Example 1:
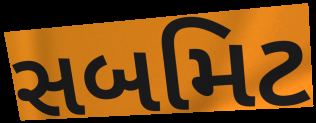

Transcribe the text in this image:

સબમિટ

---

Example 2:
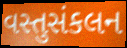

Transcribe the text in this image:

વસ્તુસંકલન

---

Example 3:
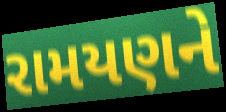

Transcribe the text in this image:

રામયણને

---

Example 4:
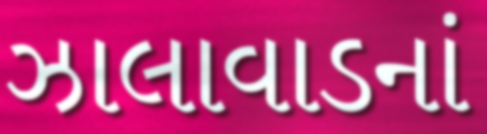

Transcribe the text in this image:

ઝાલાવાડનાં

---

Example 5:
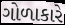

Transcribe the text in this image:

ગોળાકારે